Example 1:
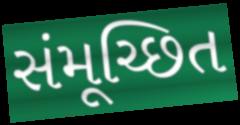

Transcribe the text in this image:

સંમૂચ્છિત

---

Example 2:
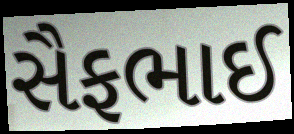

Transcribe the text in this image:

સૈફભાઈ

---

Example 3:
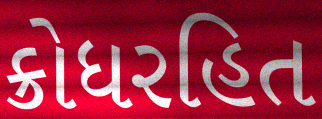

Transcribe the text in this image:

ક્રોધરહિત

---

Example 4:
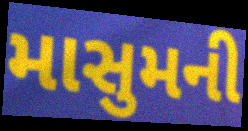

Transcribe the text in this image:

માસુમની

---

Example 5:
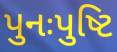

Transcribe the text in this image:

પુનઃપુષ્ટિ